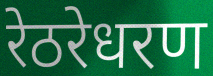
रेठरेधरण